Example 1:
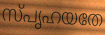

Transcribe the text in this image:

സ്പൃഹയതേ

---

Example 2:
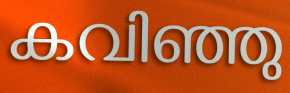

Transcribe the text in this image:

കവിഞ്ഞു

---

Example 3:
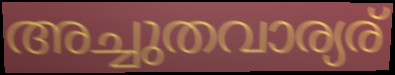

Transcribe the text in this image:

അച്ചുതവാര്യര്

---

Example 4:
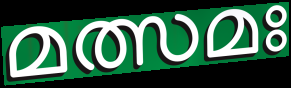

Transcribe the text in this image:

മത്സമഃ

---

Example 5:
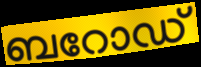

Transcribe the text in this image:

ബറോഡ്